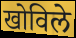
खोविले